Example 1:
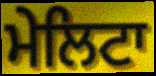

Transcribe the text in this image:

ਮੇਲਿਟਾ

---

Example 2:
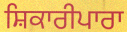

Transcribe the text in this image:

ਸ਼ਿਕਾਰੀਪਾਰਾ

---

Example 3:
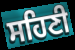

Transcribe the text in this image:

ਸਹਿਣੀ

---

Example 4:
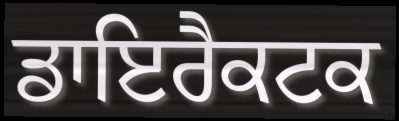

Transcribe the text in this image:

ਡਾਇਰੈਕਟਕ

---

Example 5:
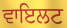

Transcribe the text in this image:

ਵਾਇਲਟ